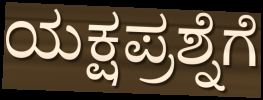
ಯಕ್ಷಪ್ರಶ್ನೆಗೆ